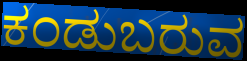
ಕಂಡುಬರುವ